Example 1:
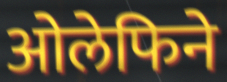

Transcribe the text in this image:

ओलेफिने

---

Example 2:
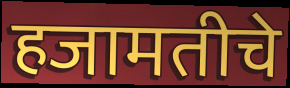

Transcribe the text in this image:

हजामतीचे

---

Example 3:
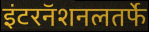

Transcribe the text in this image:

इंटरनॅशनलतर्फे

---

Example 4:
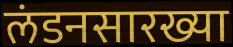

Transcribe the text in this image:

लंडनसारख्या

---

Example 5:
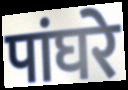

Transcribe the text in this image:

पांघरे